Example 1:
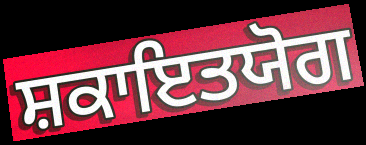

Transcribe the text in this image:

ਸ਼ਕਾਇਤਯੋਗ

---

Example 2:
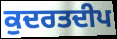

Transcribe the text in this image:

ਕੁਦਰਤਦੀਪ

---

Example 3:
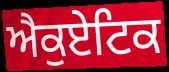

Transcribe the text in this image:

ਐਕੁਏਟਿਕ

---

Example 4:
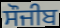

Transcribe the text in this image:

ਸੌਜੀਬ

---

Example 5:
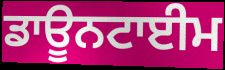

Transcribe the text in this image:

ਡਾਊਨਟਾਈਮ